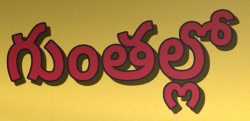
గుంతల్లో